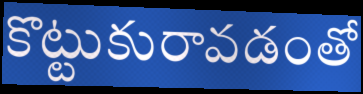
కొట్టుకురావడంతో